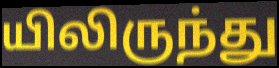
யிலிருந்து